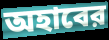
অহাবের